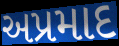
અપ્રમાદ